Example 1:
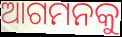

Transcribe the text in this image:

ଆଗମନକୁ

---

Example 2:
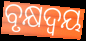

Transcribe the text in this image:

ବୃକ୍ଷଦ୍ୱୟ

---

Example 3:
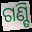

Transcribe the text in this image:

ଗଣ୍ଡି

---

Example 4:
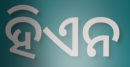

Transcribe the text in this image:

ହିଏନ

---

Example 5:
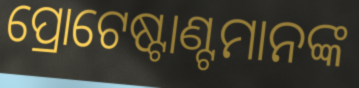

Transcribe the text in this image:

ପ୍ରୋଟେଷ୍ଟାଣ୍ଟମାନଙ୍କ